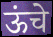
ऊंचे